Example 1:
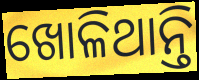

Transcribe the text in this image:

ଖୋଳିଥାନ୍ତି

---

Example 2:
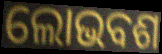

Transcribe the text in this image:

ଲୋଭବଶ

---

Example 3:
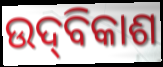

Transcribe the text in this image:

ଉଦ୍‌ବିକାଶ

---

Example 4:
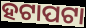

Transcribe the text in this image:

ହଟାପଟା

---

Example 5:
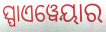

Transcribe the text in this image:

ସ୍ପାଏୱେୟାର